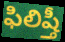
ఫిలిష్తీ